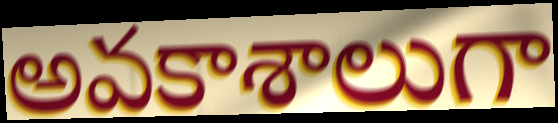
అవకాశాలుగా